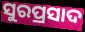
ସୁରପ୍ରସାଦ